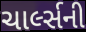
ચાર્લ્સની